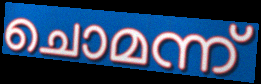
ചൊമന്ന്